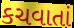
કચવાતાં